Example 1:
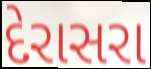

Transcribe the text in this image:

દેરાસરા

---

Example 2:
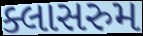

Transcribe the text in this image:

ક્લાસરુમ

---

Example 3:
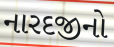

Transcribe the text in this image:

નારદજીનો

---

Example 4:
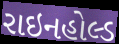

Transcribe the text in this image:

રાઇનહોલ્ડ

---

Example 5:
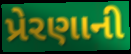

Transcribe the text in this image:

પ્રેરણાની